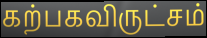
கற்பகவிருட்சம்